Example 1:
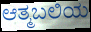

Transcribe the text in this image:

ಆತ್ಮಬಲಿಯ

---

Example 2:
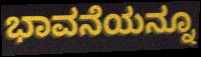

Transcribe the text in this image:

ಭಾವನೆಯನ್ನೂ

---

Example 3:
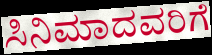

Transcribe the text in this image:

ಸಿನಿಮಾದವರಿಗೆ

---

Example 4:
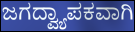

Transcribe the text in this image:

ಜಗದ್ವ್ಯಾಪಕವಾಗಿ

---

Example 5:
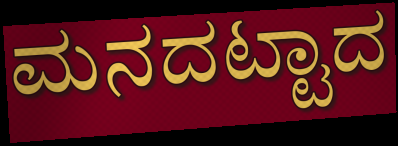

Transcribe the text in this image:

ಮನದಟ್ಟಾದ